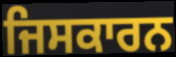
ਜਿਸਕਾਰਨ